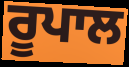
ਰੂਪਾਲ